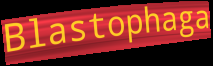
Blastophaga